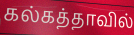
கல்கத்தாவில்